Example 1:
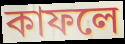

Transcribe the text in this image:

কাফলে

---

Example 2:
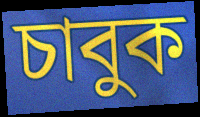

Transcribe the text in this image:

চাবুক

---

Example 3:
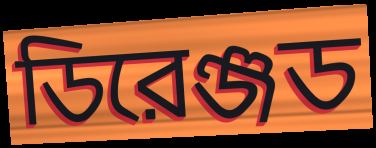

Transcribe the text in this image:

ডিরেঞ্জড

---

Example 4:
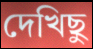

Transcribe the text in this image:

দেখিছু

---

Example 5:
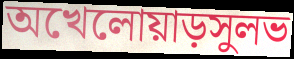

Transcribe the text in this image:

অখেলোয়াড়সুলভ